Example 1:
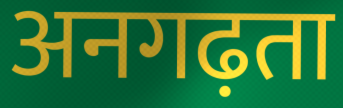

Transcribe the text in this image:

अनगढ़ता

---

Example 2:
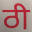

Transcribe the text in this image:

ठी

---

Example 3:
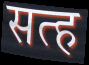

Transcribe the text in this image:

सत्ह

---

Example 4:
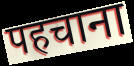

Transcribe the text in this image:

पहचाना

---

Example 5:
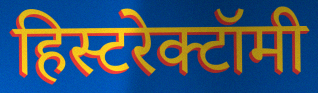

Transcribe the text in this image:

हिस्टरेक्टॉमी